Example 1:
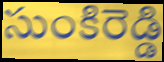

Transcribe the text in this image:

సుంకిరెడ్డి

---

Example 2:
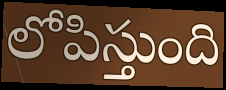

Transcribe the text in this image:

లోపిస్తుంది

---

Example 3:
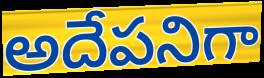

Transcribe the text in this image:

అదేపనిగా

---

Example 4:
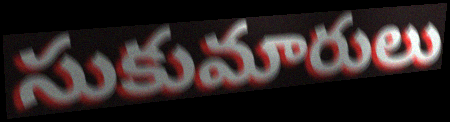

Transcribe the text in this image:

సుకుమారులు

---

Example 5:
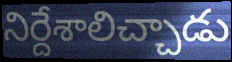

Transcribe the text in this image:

నిర్దేశాలిచ్చాడు